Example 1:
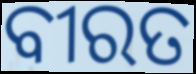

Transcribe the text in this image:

ବୀରତ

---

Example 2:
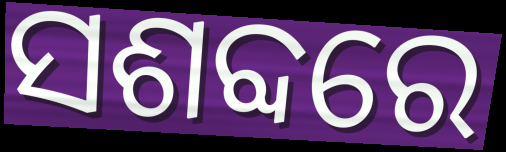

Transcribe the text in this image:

ସଶବ୍ଦରେ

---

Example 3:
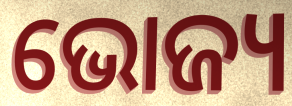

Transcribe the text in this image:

ଭୋଜ୍ୟ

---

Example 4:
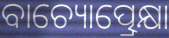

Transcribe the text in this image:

ବାଚ୍ୟୋତ୍ପ୍ରେକ୍ଷା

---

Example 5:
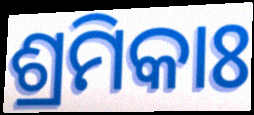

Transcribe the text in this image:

ଶ୍ରମିକାଃ